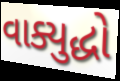
વાક્યુદ્ધો